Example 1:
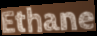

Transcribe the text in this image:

Ethane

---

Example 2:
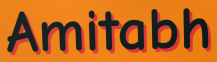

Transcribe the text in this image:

Amitabh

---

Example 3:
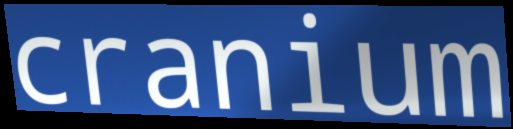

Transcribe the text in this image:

cranium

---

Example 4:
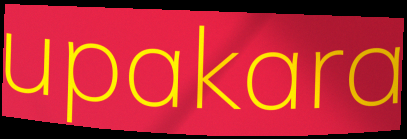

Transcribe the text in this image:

upakara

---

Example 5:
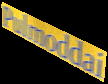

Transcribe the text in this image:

Pulmoddai